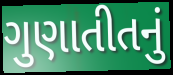
ગુણાતીતનું